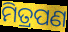
ମିତ୍ରପଣ